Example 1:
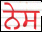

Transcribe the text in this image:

ਨੇਸ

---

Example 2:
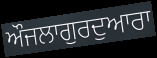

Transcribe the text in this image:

ਔਜਲਾਗੁਰਦੁਆਰਾ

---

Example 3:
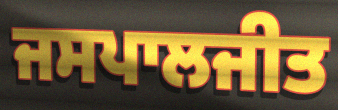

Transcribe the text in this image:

ਜਸਪਾਲਜੀਤ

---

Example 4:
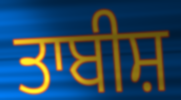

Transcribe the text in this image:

ਤਾਬੀਸ਼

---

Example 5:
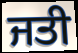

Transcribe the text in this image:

ਜਤੀ